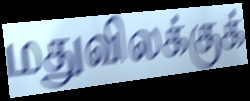
மதுவிலக்குக்